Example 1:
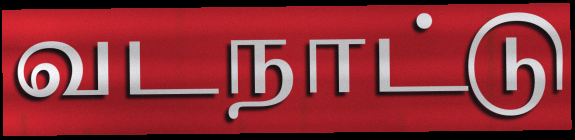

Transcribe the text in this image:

வடநாட்டு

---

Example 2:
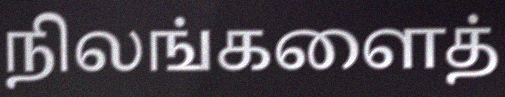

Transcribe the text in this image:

நிலங்களைத்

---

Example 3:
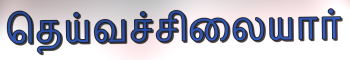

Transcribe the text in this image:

தெய்வச்சிலையார்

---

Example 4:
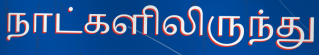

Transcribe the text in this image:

நாட்களிலிருந்து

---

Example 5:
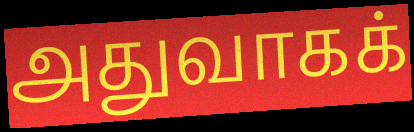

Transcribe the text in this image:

அதுவாகக்